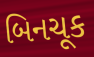
બિનચૂક